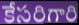
కేసరిగారి